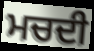
ਮਚਦੀ